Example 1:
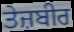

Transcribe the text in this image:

ਤੇਜ਼ਬੀਰ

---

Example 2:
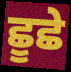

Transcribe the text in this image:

ਛੂਛੇ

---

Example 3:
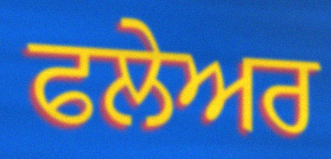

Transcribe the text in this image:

ਫਲੇਅਰ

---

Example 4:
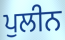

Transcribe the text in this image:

ਪੁਲੀਨ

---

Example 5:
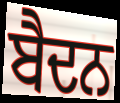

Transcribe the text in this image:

ਬੈਦਨ